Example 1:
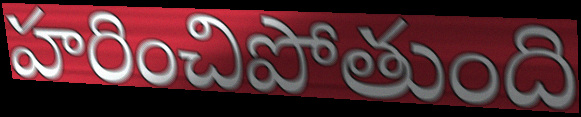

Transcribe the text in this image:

హరించిపోతుంది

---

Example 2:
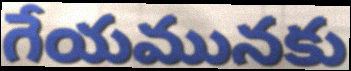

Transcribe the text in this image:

గేయమునకు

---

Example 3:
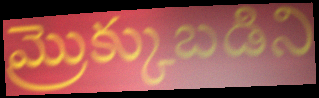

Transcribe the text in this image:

మ్రొక్కుబడిని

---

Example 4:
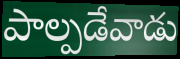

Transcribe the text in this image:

పాల్పడేవాడు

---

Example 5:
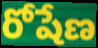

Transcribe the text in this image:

రోషేణ